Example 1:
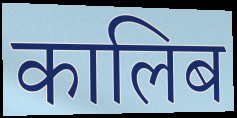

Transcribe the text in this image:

कालिब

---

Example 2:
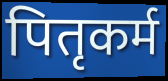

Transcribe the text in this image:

पितृकर्म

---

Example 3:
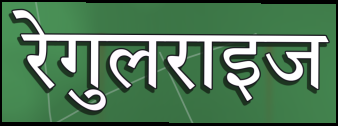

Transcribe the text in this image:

रेगुलराइज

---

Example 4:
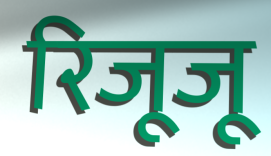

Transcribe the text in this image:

रिजूजू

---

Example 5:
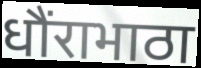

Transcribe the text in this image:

धौंराभाठा